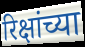
रिक्षांच्या